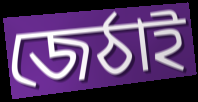
জেঠাই